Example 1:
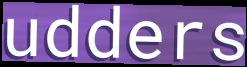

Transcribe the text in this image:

udders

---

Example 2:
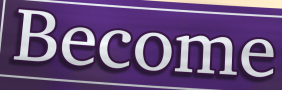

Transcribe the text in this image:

Become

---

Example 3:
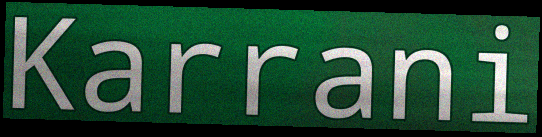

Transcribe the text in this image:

Karrani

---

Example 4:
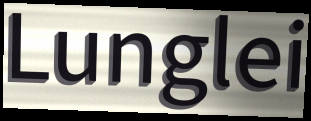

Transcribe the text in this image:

Lunglei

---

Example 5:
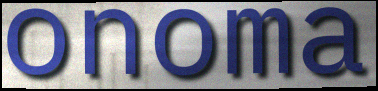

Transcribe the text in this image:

onoma